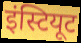
इंस्टियूट